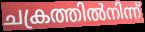
ചക്രത്തിൽനിന്ന്